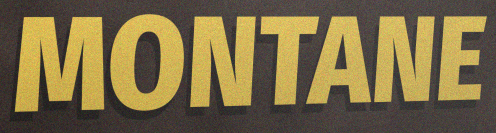
MONTANE